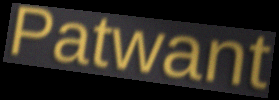
Patwant